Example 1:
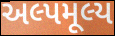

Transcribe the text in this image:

અલ્પમૂલ્ય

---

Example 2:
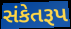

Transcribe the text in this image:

સંકેતરૂપ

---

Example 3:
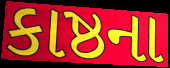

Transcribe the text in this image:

કાષ્ઠના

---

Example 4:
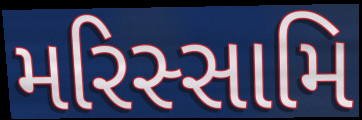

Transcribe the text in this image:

મરિસ્સામિ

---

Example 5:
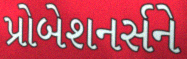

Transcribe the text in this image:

પ્રોબેશનર્સને